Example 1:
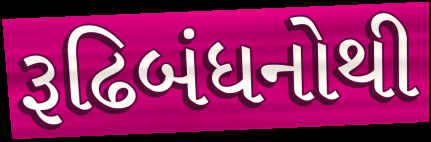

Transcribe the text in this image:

રૂઢિબંધનોથી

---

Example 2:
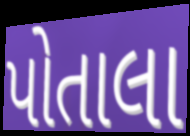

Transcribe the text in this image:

પોતાલા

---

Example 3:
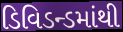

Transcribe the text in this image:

ડિવિડન્ડમાંથી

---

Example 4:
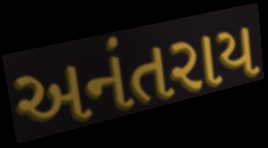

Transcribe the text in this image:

અનંતરાય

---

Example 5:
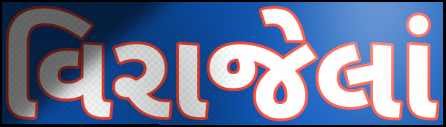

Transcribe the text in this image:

વિરાજેલાં